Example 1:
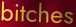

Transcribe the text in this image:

bitches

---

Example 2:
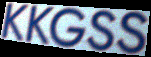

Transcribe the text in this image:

KKGSS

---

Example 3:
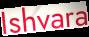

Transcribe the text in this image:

Ishvara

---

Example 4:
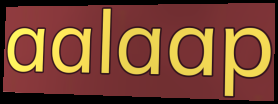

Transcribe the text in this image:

aalaap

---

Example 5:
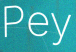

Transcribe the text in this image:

Pey